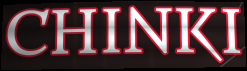
CHINKI